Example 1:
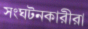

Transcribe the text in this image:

সংঘটনকারীরা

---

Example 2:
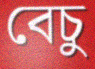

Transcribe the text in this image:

বেচু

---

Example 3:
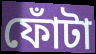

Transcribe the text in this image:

ফোঁটা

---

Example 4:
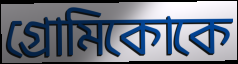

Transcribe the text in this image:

গ্রোমিকোকে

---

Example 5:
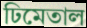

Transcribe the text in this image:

ঢিমেতাল